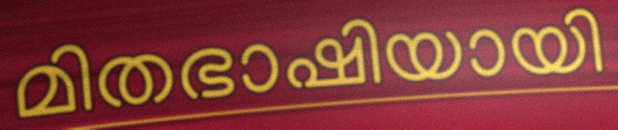
മിതഭാഷിയായി